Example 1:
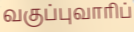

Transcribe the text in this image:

வகுப்புவாரிப்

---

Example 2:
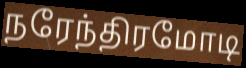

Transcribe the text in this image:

நரேந்திரமோடி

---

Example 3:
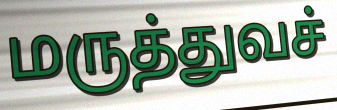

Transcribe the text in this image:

மருத்துவச்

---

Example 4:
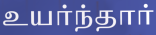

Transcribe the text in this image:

உயர்ந்தார்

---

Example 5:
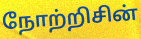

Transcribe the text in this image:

நோற்றிசின்